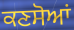
ਕਣਸੋਆਂ